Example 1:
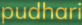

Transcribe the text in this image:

pudhari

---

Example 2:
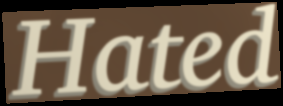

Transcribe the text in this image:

Hated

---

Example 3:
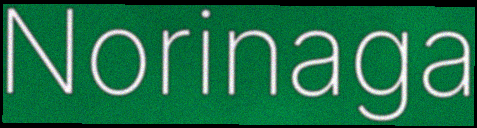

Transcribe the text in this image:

Norinaga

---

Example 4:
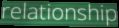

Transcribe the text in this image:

relationship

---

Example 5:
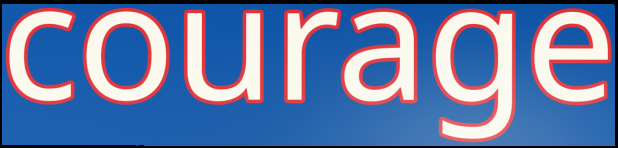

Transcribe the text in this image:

courage